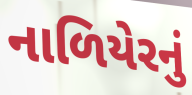
નાળિયેરનું